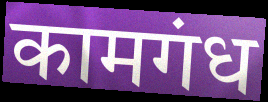
कामगंध